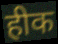
हीक